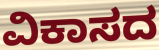
ವಿಕಾಸದ